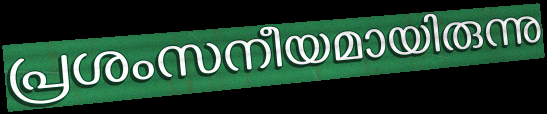
പ്രശംസനീയമായിരുന്നു